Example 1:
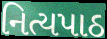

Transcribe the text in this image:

નિત્યપાઠ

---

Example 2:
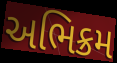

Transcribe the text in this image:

અભિક્રમ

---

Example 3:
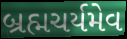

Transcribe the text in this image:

બ્રહ્મચર્યમેવ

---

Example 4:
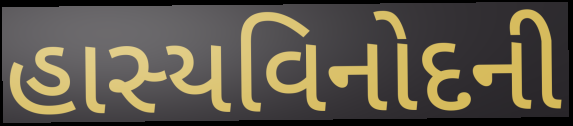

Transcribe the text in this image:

હાસ્યવિનોદની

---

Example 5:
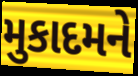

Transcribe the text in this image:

મુકાદમને